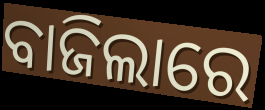
ବାଜିଲାରେ